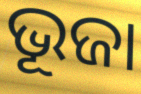
ଭୂଜା